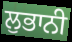
ਲੁਭਾਨੀ